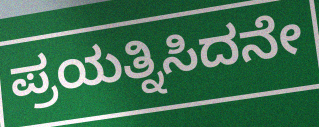
ಪ್ರಯತ್ನಿಸಿದನೇ